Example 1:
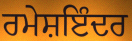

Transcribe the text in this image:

ਰਮੇਸ਼ਇੰਦਰ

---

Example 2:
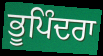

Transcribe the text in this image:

ਭੂਪਿੰਦਰਾ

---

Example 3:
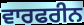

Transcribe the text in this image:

ਵਾਰਫਰੀਨ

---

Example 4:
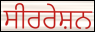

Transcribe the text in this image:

ਸੀਰਰੇਸ਼ਨ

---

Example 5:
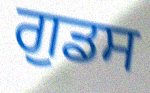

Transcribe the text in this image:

ਗੁਡਸ